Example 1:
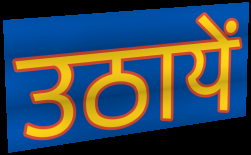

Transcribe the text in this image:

उठायें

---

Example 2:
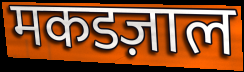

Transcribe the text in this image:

मकडज़ाल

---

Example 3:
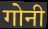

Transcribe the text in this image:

गोनी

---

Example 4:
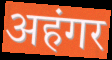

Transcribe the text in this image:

अहंगर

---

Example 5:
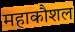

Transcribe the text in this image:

महाकौशल